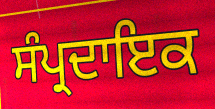
ਸੰਪ੍ਰਦਾਇਕ